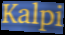
Kalpi